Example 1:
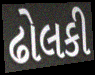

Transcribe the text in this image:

ઢોલકી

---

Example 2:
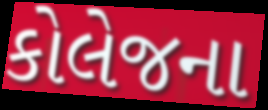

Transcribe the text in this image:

કોલેજના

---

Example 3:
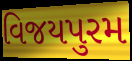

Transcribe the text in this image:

વિજયપુરમ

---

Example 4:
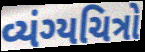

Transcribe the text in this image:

વ્યંગ્યચિત્રો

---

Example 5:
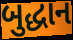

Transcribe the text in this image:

બુદ્ધાન